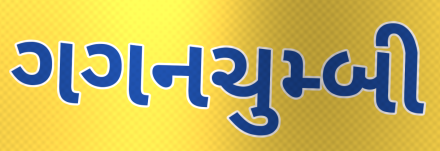
ગગનચુમ્બી